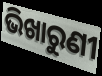
ଭିଖାରୁଣୀ